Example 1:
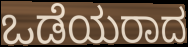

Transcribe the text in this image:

ಒಡೆಯರಾದ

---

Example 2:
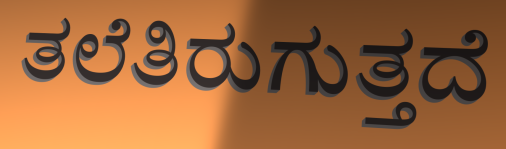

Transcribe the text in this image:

ತಲೆತಿರುಗುತ್ತದೆ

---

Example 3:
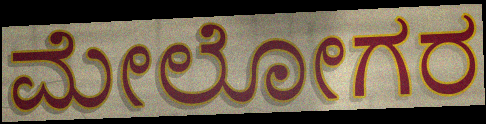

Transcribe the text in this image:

ಮೇಲೋಗರ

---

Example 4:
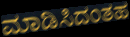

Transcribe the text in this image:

ಮಾಡಿಸಿದಂತಹ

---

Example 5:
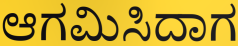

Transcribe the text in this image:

ಆಗಮಿಸಿದಾಗ